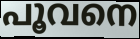
പൂവനെ